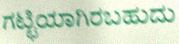
ಗಟ್ಟಿಯಾಗಿರಬಹುದು